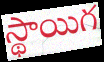
స్థాయిగ